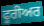
ਫੂਰੀਅਰ